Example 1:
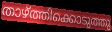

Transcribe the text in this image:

താഴ്ത്തിക്കൊടുത്തു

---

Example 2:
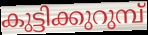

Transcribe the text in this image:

കുട്ടിക്കുറുമ്പ്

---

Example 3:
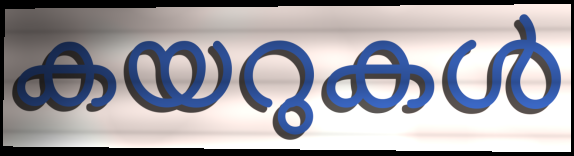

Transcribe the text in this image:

കയറുകൾ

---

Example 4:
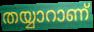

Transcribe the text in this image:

തയ്യാറാണ്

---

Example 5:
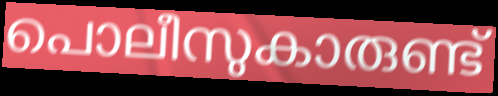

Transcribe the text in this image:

പൊലീസുകാരുണ്ട്